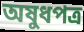
অষুধপত্র